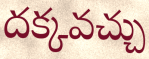
దక్కవచ్చు